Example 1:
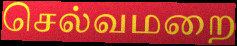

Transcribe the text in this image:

செல்வமறை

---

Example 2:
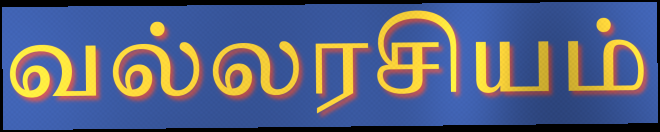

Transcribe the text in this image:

வல்லரசியம்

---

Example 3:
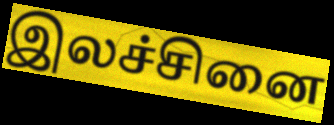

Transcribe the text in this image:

இலச்சினை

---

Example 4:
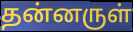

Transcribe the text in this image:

தன்னருள்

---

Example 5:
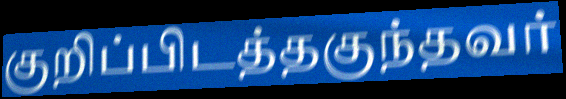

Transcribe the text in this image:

குறிப்பிடத்தகுந்தவர்